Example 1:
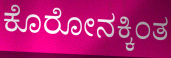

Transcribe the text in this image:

ಕೊರೋನಕ್ಕಿಂತ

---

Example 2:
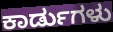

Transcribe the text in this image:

ಕಾರ್ಡುಗಳು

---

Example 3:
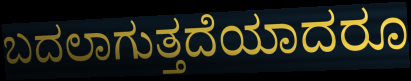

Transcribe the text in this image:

ಬದಲಾಗುತ್ತದೆಯಾದರೂ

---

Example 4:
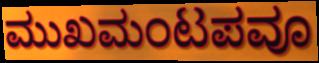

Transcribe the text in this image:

ಮುಖಮಂಟಪವೂ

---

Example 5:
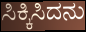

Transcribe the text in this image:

ಸಿಕ್ಕಿಸಿದನು